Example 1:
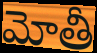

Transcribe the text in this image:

మోతీ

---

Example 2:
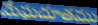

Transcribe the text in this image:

మేఘదూతము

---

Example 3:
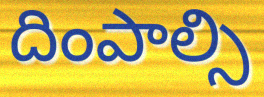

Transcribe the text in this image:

దింపాల్సి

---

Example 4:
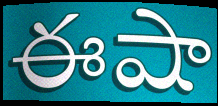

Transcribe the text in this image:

ఈషా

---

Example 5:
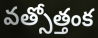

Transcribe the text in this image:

వత్సోత్తంక